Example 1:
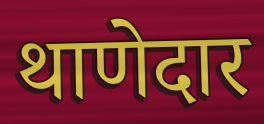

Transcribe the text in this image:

थाणेदार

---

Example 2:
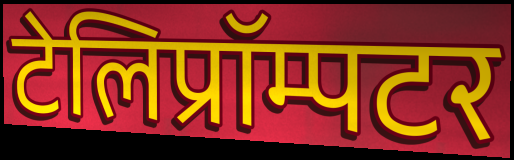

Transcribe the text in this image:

टेलिप्रॉम्पटर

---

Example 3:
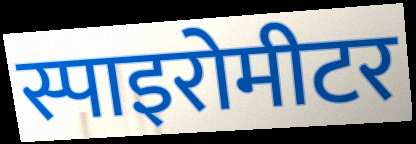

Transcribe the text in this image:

स्पाइरोमीटर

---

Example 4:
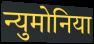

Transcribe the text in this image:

न्युमोनिया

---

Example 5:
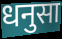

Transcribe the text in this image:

धनुसा